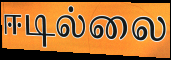
ஈடில்லை